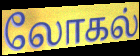
லோகல்